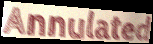
Annulated